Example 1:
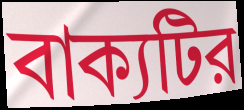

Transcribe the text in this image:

বাক্যটির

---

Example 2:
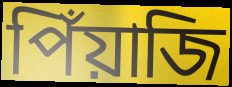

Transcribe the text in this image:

পিঁয়াজি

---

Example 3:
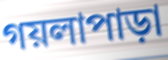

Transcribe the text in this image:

গয়লাপাড়া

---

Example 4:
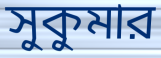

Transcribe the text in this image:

সুকুমার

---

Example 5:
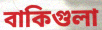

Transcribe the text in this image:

বাকিগুলা